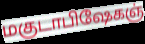
மகுடாபிஷேகஞ்